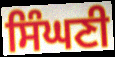
ਸਿੰਘਣੀ